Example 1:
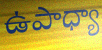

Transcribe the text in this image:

ఉపాధ్యా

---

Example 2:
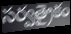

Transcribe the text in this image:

సర్వత్రైకం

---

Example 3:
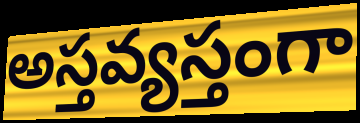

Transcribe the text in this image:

అస్తవ్యస్తంగా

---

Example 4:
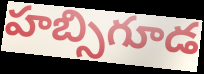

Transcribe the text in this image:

హబ్సిగూడ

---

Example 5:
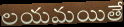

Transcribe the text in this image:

లయమయితే